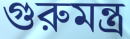
গুরুমন্ত্র